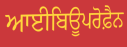
ਆਈਬਿਊਪਰੋਫ਼ੈਨ